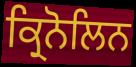
ਕ੍ਰਿਨੋਲਿਨ